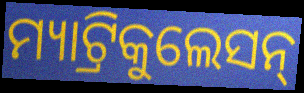
ମ୍ୟାଟ୍ରିକୁଲେସନ୍